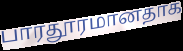
பாரதூரமானதாக